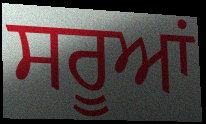
ਸਰੂਆਂ